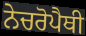
ਨੇਚਰੋਪੈਥੀ